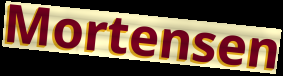
Mortensen